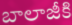
బాలాజీకి